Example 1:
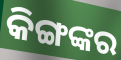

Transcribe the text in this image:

କିଙ୍ଗଙ୍କର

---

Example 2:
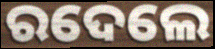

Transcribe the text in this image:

ରଦେଲେ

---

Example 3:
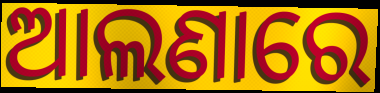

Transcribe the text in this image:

ଆଲଣାରେ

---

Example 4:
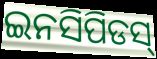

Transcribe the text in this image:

ଇନସିପିଡସ୍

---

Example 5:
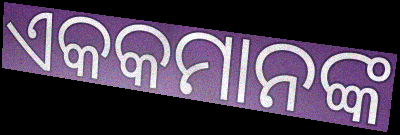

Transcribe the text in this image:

ଏକକମାନଙ୍କ